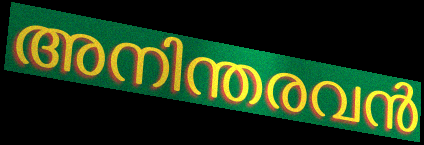
അനിന്തരവൻ